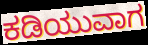
ಕಡಿಯುವಾಗ